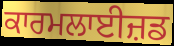
ਕਾਰਮਲਾਈਜ਼ਡ